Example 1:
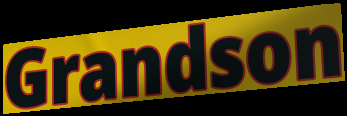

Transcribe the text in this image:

Grandson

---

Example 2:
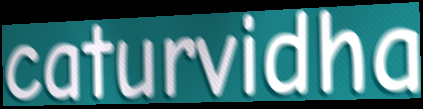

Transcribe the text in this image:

caturvidha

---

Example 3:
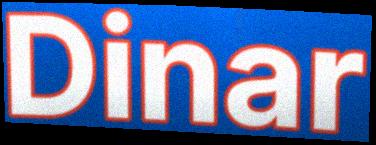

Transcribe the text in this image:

Dinar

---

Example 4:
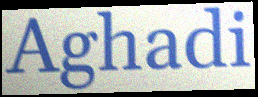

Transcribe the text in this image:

Aghadi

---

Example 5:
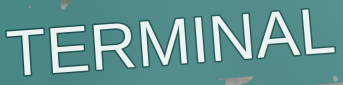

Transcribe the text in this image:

TERMINAL